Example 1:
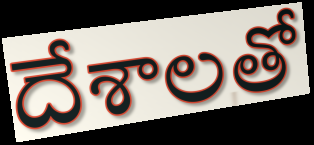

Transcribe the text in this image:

దేశాలతో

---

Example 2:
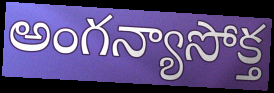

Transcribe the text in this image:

అంగన్యాసోక్త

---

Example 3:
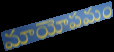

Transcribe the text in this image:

మాయోపమం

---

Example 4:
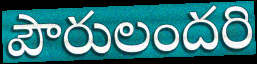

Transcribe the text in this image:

పౌరులందరి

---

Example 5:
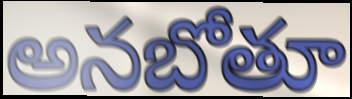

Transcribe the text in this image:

అనబోతూ